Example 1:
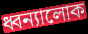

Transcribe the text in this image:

ধ্বন্যালোক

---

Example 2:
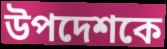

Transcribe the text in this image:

উপদেশকে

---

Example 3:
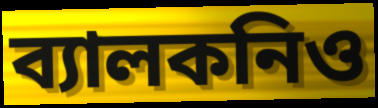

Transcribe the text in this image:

ব্যালকনিও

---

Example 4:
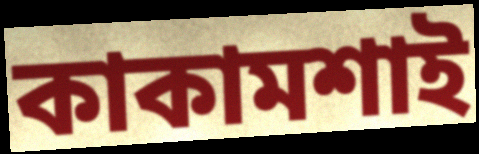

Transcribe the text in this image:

কাকামশাই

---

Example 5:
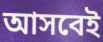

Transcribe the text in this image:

আসবেই